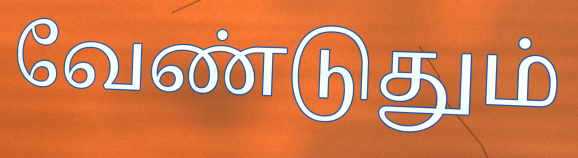
வேண்டுதும்